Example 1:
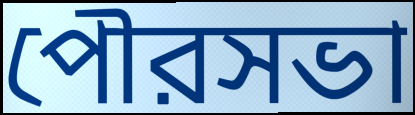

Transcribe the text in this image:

পৌরসভা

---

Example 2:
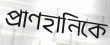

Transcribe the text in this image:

প্রাণহানিকে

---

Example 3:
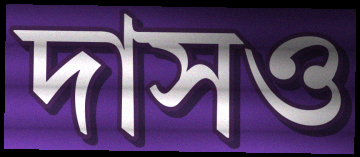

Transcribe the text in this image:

দাসও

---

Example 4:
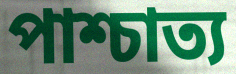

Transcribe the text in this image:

পাশ্চাত্য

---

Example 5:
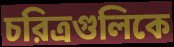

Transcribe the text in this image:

চরিত্রগুলিকে